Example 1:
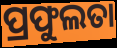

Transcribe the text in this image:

ପ୍ରଫୁଲତା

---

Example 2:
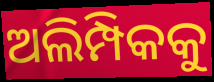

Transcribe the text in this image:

ଅଲିମ୍ପିକକୁ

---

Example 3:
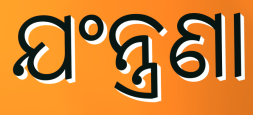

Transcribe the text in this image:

ଯଂନ୍ତ୍ରଣା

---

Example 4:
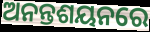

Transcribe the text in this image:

ଅନନ୍ତଶୟନରେ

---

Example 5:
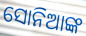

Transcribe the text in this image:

ସୋନିଆଙ୍କ